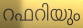
റഫറിയും